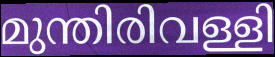
മുന്തിരിവള്ളി